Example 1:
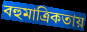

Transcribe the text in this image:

বহুমাত্রিকতায়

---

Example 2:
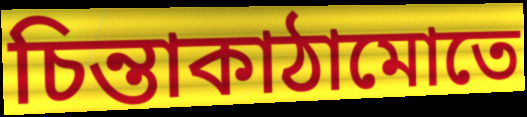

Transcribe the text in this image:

চিন্তাকাঠামোতে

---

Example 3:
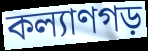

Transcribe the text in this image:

কল্যাণগড়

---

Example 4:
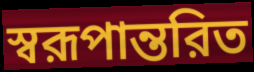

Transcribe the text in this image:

স্বরূপান্তরিত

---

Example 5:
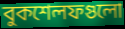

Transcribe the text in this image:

বুকশেলফগুলো